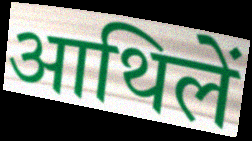
आथिलें